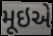
મૂઇએ